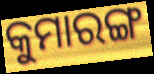
କୁମାରଙ୍ଗ